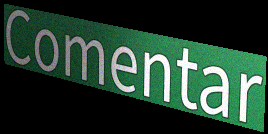
Comentar